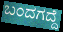
ಬಂದಗದ್ದೆ